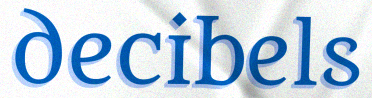
decibels